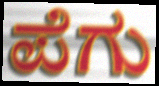
ಪೆಗು